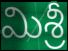
మిశ్రీ